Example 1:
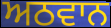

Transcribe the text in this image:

ਅਠਵਾਨ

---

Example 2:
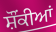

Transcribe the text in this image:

ਸ਼ੌਂਕੀਆਂ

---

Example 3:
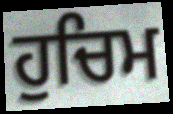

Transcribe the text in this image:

ਹੁਚਿਮ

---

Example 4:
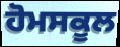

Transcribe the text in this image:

ਹੋਮਸਕੂਲ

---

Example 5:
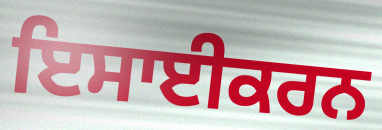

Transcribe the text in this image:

ਇਸਾਈਕਰਨ